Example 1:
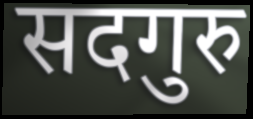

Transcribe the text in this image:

सदगुरु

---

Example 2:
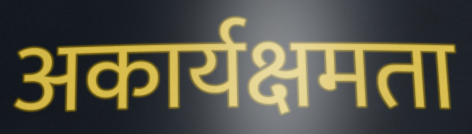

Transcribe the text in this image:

अकार्यक्षमता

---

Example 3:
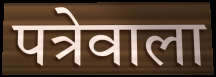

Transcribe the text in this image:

पत्रेवाला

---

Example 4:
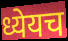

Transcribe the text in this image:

ध्येयच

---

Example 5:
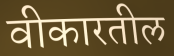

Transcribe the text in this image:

वीकारतील